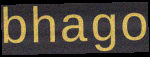
bhago